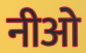
नीओ